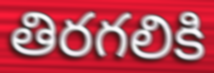
తిరగలికి